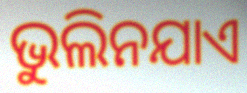
ଭୁଲିନଯାଏ